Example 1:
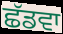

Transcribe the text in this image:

ਛੱਡਵਾ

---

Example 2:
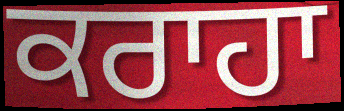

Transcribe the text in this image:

ਕਰਾਹਾ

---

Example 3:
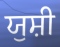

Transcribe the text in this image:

ਯੁਸ਼ੀ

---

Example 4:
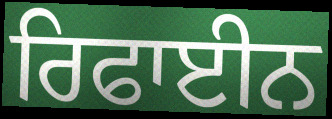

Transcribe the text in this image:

ਰਿਫਾਈਨ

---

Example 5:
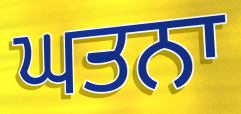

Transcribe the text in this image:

ਘਤਨਾ